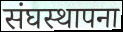
संघस्थापना